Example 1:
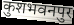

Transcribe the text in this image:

कुशभवनपुर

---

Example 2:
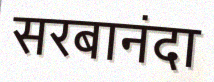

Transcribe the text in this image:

सरबानंदा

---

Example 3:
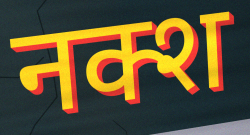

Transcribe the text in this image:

नक्श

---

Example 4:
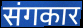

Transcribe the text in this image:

संगकार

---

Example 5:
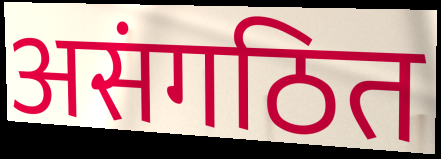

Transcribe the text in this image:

असंगठित